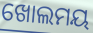
ଖୋଲମୟ